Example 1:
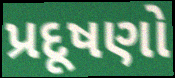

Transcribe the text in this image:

પ્રદૂષણો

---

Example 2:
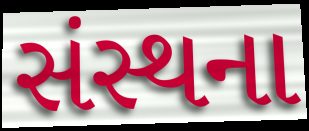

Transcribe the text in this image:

સંસ્થના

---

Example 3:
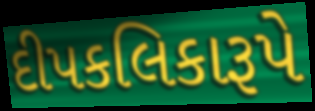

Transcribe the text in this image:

દીપકલિકારૂપે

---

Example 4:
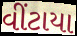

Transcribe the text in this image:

વીંટાયા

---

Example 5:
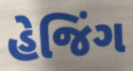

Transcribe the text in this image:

હેજિંગ